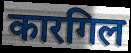
कारगिल